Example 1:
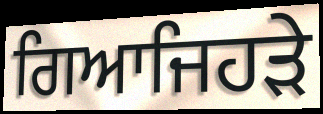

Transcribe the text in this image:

ਗਿਆਜਿਹੜੇ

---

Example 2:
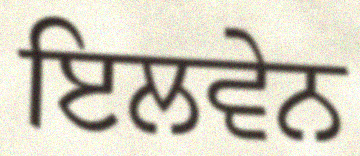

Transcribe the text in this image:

ਇਲਵੇਨ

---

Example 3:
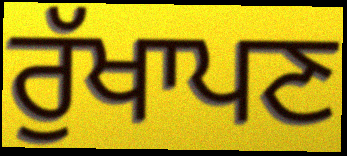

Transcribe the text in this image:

ਰੁੱਖਾਪਣ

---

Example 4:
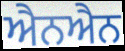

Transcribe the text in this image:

ਐਨਐਨ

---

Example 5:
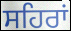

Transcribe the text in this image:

ਸਹਿਰਾਂ